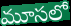
మూసలో